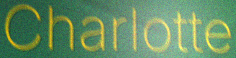
Charlotte